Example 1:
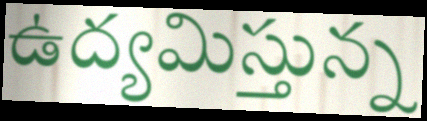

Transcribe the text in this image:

ఉద్యమిస్తున్న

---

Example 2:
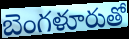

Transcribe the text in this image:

బెంగళూరుతో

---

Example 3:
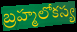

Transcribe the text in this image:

బ్రహ్మలోకస్య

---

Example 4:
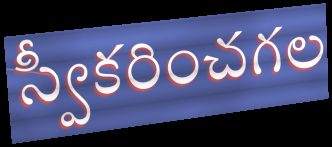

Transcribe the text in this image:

స్వీకరించగల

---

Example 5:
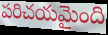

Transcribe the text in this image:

పరిచయమైంది